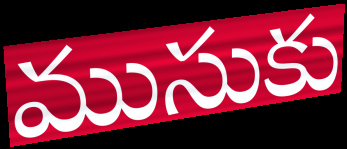
ముసుకు